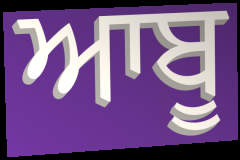
ਆਬੂ